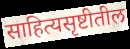
साहित्यसृष्टीतील